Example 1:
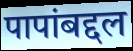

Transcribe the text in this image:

पापांबद्दल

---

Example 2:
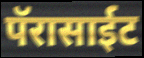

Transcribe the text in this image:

पॅरासाईट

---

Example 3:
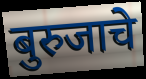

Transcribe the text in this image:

बुरुजाचे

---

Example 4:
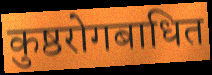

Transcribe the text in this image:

कुष्ठरोगबाधित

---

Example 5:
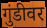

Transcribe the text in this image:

गुंडीवर